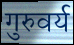
गुरुवर्य